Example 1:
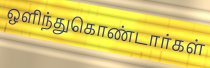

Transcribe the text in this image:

ஒளிந்துகொண்டார்கள்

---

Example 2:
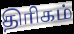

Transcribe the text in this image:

திரிகம்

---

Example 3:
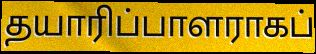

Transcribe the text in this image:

தயாரிப்பாளராகப்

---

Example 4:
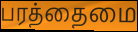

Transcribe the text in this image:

பரத்தைமை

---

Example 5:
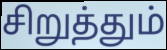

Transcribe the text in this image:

சிறுத்தும்